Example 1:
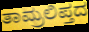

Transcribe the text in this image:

ತಾಮ್ರಲಿಪ್ತದ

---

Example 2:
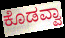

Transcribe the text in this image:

ಕೊಡವ್ವಾ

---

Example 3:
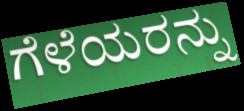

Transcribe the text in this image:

ಗೆಳೆಯರನ್ನು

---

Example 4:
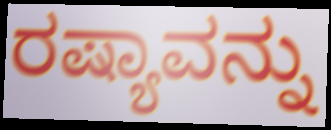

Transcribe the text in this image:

ರಷ್ಯಾವನ್ನು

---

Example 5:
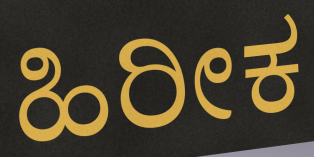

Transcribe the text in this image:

ಹಿರೀಕ